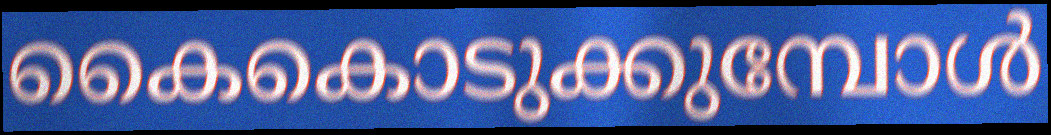
കൈകൊടുക്കുമ്പോൾ